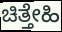
ಚಿತ್ತೇಹಿ